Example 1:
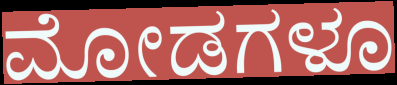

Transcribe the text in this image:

ಮೋಡಗಳೂ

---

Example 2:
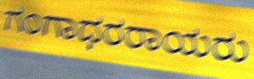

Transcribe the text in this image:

ಗಂಗಾಧರರಾಯರು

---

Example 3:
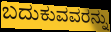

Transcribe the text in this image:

ಬದುಕುವವರನ್ನು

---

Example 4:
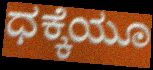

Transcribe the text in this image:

ಧಕ್ಕೆಯೂ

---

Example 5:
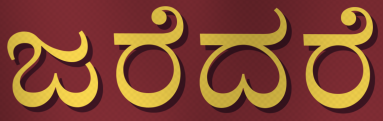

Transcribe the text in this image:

ಜರೆದರೆ